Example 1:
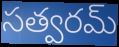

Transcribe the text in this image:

సత్వరమ్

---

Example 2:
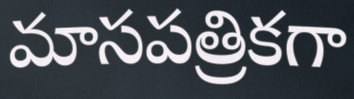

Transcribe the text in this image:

మాసపత్రికగా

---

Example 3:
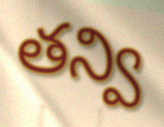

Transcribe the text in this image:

తన్వి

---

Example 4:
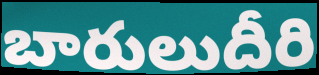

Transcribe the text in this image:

బారులుదీరి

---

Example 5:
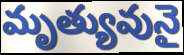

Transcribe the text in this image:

మృత్యువునై